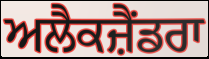
ਅਲੈਕਜ਼ੈਂਡਰਾ